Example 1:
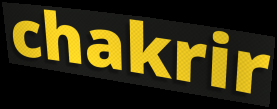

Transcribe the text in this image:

chakrir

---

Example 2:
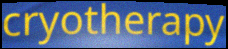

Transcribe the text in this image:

cryotherapy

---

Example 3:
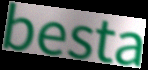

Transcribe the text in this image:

besta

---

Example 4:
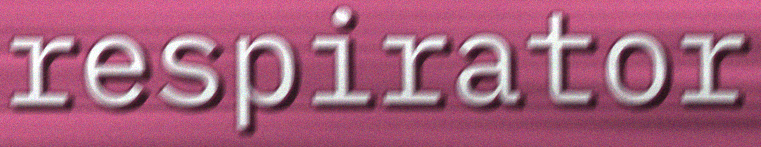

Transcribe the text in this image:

respirator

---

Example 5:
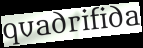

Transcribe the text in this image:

quadrifida